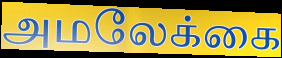
அமலேக்கை